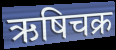
ऋषिचक्र